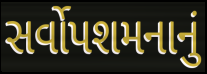
સર્વોપશમનાનું